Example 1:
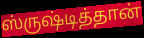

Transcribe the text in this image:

ஸ்ருஷ்டித்தான்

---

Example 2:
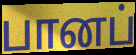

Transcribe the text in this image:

பானப்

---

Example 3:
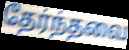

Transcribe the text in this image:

தேர்ந்தவை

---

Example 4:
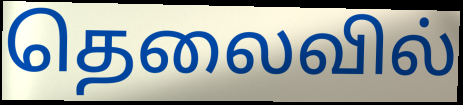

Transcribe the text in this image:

தெலைவில்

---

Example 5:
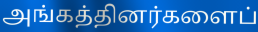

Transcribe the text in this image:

அங்கத்தினர்களைப்